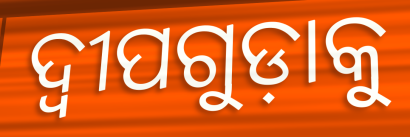
ଦ୍ୱୀପଗୁଡ଼ାକୁ